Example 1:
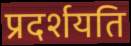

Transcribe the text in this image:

प्रदर्शयति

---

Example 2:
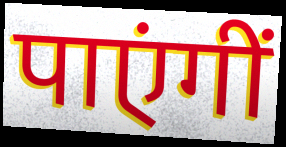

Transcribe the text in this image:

पाएंगीं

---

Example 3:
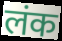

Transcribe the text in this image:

लंक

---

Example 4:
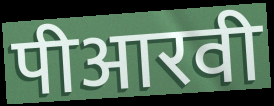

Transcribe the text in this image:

पीआरवी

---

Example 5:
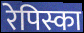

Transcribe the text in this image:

रेपिस्का